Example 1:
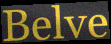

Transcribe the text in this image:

Belve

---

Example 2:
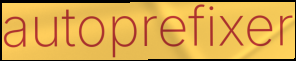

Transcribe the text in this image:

autoprefixer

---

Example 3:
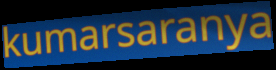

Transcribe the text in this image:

kumarsaranya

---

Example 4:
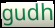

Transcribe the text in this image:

gudh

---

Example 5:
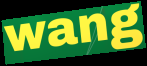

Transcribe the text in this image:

wang